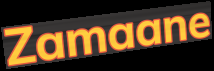
Zamaane